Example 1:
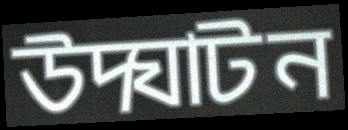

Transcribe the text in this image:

উদ্ঘাটন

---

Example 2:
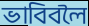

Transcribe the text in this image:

ভাবিবলৈ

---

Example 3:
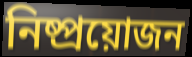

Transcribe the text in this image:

নিষ্প্ৰয়োজন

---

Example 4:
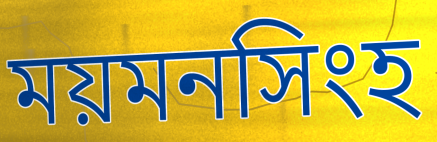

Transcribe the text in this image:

ময়মনসিংহ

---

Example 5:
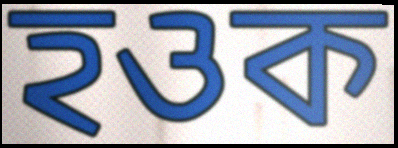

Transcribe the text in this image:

হওক